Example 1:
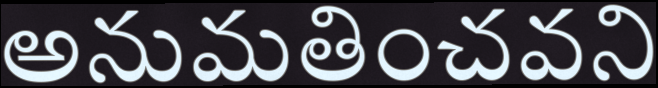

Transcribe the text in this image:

అనుమతించవని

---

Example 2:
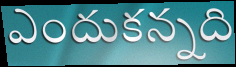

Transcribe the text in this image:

ఎందుకన్నది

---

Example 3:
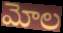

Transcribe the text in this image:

మోల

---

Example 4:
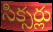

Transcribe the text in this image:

సిక్సర్లు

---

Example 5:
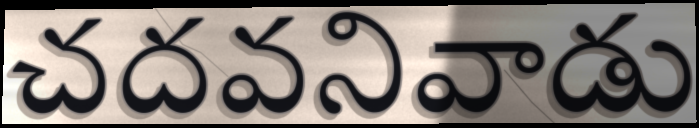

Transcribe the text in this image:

చదవనివాడు